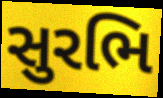
સુરભિ